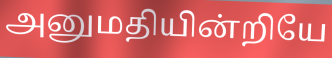
அனுமதியின்றியே